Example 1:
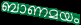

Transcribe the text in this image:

ബാണമയം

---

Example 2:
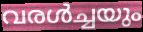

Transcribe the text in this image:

വരൾച്ചയും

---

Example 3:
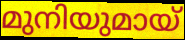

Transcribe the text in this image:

മുനിയുമായ്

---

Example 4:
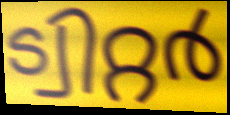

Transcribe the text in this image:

ട്വിറ്റർ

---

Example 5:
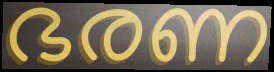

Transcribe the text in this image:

ഭരണ